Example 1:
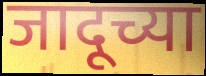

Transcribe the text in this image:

जादूच्या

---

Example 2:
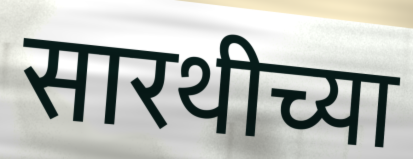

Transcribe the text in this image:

सारथीच्या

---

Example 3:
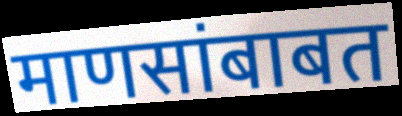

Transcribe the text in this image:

माणसांबाबत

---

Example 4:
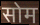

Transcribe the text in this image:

सोम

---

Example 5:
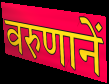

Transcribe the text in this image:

वरुणानें